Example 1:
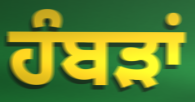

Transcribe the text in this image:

ਹੰਬੜਾਂ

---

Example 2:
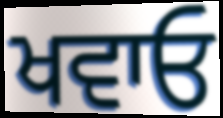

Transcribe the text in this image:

ਖਵਾਓ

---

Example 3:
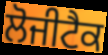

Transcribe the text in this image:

ਲੋਜੀਟੈਕ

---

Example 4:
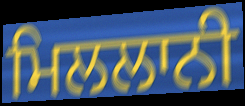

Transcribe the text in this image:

ਮਿਲਲਾਨੀ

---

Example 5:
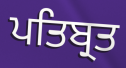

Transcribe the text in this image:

ਪਤਿਬ੍ਰਤ